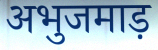
अभुजमाड़